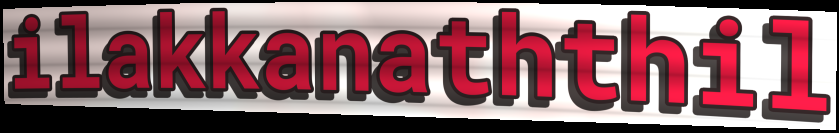
ilakkanaththil